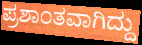
ಪ್ರಶಾಂತವಾಗಿದ್ದು